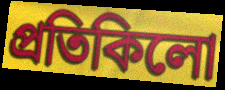
প্ৰতিকিলো